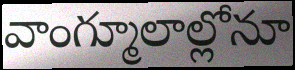
వాంగ్మూలాల్లోనూ